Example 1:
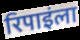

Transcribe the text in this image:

रिपाइंला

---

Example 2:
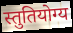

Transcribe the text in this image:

स्तुतियोग्य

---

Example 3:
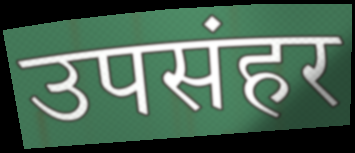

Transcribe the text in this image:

उपसंहर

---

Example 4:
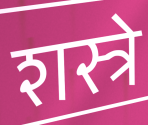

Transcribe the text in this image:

शस्त्रे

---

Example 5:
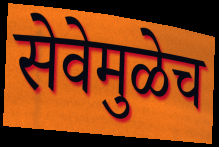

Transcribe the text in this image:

सेवेमुळेच